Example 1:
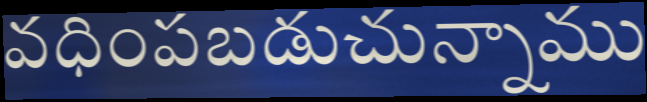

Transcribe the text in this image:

వధింపబడుచున్నాము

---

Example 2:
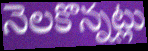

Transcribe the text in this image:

నెలకొన్నట్లు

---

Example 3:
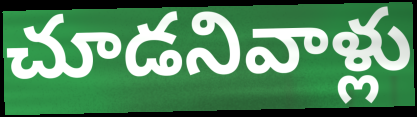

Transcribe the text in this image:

చూడనివాళ్లు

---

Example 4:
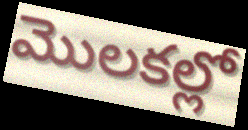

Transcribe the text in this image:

మొలకల్లో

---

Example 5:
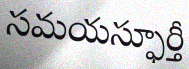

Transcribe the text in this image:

సమయస్ఫూర్తీ